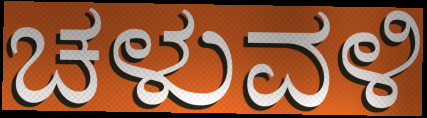
ಚಳುವಳಿ